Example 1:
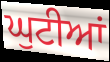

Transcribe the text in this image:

ਘੁਟੀਆਂ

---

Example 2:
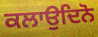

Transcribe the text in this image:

ਕਲਾਉਦਿਨੋ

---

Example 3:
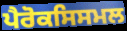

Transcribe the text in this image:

ਪੈਰੋਕਸਿਸਮਲ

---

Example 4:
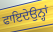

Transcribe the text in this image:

ਫਾਇਦੇਉਨ੍ਹਾਂ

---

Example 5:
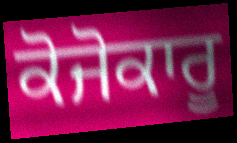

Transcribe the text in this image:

ਕੋਜੋਕਾਰੂ